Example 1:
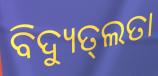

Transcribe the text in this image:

ବିଦ୍ୟୁତ୍‌ଲତା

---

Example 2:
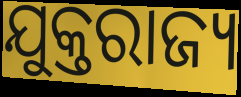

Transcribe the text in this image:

ଯୁକ୍ତରାଜ୍ୟ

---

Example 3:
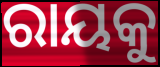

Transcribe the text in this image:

ରାୟକୁ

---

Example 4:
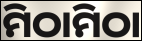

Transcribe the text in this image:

ମିଠାମିଠା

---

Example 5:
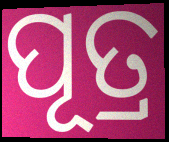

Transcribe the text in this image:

ପୂତ୍ର